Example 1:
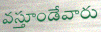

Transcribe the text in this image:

వస్తూండేవారు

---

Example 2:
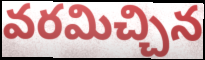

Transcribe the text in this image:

వరమిచ్చిన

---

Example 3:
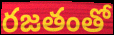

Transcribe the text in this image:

రజతంతో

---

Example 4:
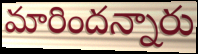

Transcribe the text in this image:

మారిందన్నారు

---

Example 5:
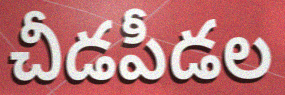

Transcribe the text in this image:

చీడపీడల